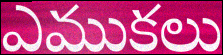
ఎముకలు